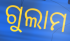
ଗୁଲାମ